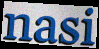
nasi